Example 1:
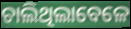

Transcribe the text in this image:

ଚାଲିଥିଲାବେଳେ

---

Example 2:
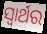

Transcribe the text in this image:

ସ୍ଵାର୍ଥର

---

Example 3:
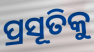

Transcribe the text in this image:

ପ୍ରସୂତିକୁ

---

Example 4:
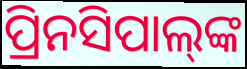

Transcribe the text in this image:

ପ୍ରିନସିପାଲ୍‍ଙ୍କ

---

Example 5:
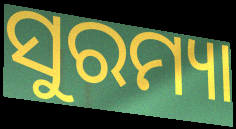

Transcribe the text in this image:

ସୁରମ୍ୟା